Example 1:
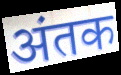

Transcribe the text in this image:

अंतक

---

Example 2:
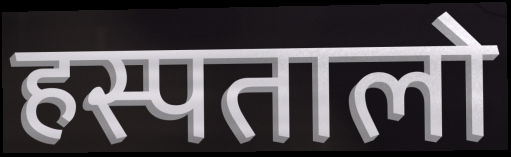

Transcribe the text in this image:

हस्पतालो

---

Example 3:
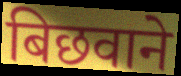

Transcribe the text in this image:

बिछवाने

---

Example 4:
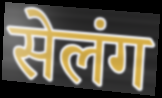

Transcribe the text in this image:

सेलंग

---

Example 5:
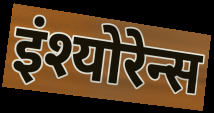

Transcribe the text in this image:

इंश्योरेन्स